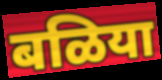
बळिया